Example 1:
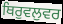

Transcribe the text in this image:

ਥਿਰੁਵਲੁਵਰ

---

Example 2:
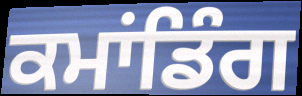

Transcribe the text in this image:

ਕਮਾਂਡਿੰਗ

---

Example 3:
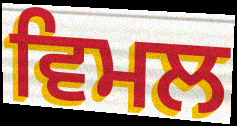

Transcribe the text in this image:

ਵਿਮਲ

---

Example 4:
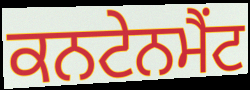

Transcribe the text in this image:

ਕਨਟੇਨਮੈਂਟ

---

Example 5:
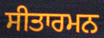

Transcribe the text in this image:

ਸੀਤਾਰਮਨ